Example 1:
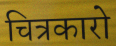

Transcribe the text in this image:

चित्रकारो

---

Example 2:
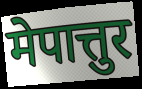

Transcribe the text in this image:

मेपात्तुर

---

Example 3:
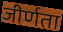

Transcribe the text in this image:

जीर्णता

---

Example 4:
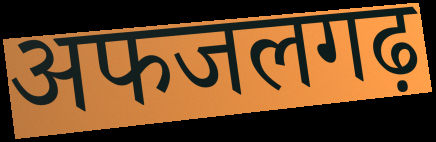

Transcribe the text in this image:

अफजलगढ़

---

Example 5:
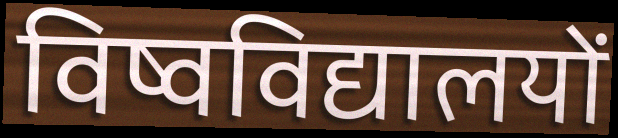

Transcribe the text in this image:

विष्वविद्यालयों